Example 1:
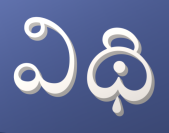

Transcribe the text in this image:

విథి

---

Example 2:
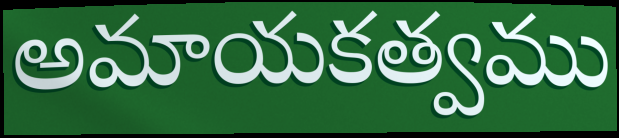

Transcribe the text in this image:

అమాయకత్వము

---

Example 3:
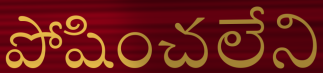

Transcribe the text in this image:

పోషించలేని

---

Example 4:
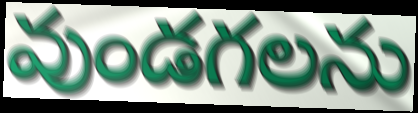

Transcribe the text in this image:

వుండగలను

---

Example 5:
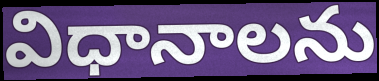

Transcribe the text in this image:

విధానాలను